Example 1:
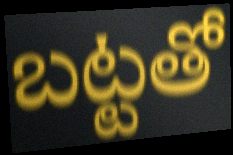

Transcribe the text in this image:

బట్టతో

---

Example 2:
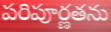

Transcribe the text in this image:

పరిపూర్ణతను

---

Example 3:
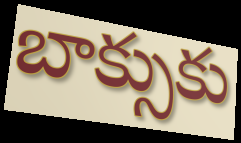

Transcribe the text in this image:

బాక్సుకు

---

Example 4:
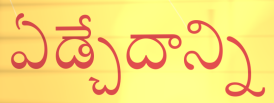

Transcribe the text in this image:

ఏడ్చేదాన్ని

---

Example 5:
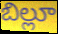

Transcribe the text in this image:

బిల్లూ